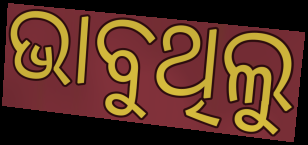
ଭାବୁଥିଲୁ